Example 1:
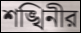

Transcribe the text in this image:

শঙ্খিনীর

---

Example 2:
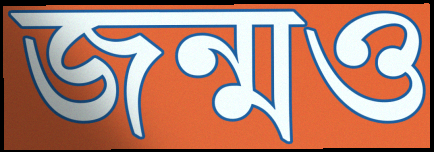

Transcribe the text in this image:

জন্মও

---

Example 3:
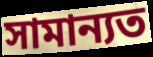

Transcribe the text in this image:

সামান্যত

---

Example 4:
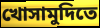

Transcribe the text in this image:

খোসামুদিতে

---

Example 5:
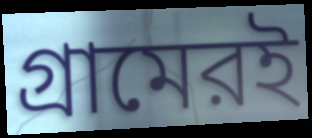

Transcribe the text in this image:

গ্রামেরই